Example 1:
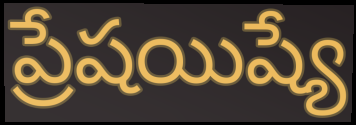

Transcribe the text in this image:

ప్రేషయిష్యే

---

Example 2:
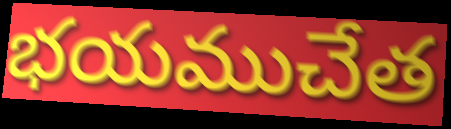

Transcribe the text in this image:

భయముచేత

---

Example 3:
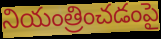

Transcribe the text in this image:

నియంత్రించడంపై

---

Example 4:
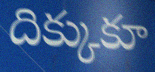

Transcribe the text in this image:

దిక్కుకూ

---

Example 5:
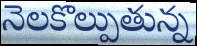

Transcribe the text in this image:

నెలకొల్పుతున్న